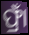
ଫ୍ରାଁ